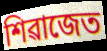
শিৱাজেত